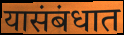
यासंबंधात